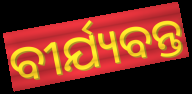
ବୀର୍ଯ୍ୟବନ୍ତ